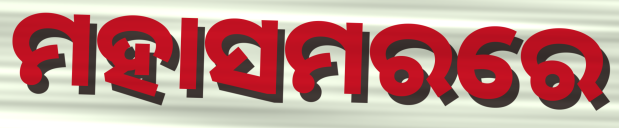
ମହାସମରରେ